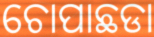
ଚୋପାଛଡା